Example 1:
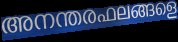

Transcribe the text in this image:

അനന്തരഫലങ്ങളെ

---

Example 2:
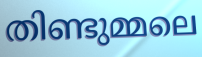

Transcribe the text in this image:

തിണ്ടുമ്മലെ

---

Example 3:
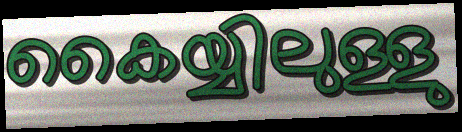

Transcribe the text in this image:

കൈയ്യിലുള്ളു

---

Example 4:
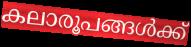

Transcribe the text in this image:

കലാരൂപങ്ങൾക്ക്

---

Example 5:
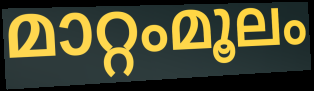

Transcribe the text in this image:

മാറ്റംമൂലം